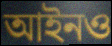
আইনও